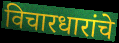
विचारधारांचे